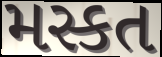
મસ્કત